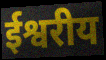
ईश्वरीय